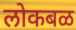
लोकबळ